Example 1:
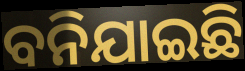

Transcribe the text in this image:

ବନିଯାଇଛି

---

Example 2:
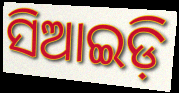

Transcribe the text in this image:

ସିଆଇଡ଼ି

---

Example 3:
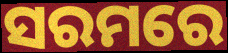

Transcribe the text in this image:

ସରମରେ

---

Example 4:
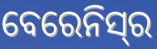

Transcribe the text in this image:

ବେରେନିସ୍‌ର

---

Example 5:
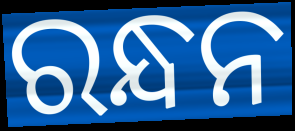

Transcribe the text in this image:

ରନ୍ଧନ